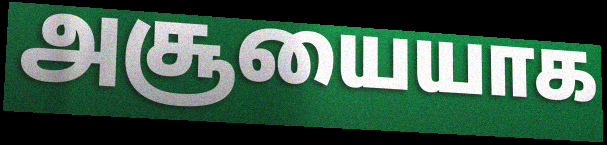
அசூயையாக